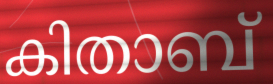
കിതാബ്